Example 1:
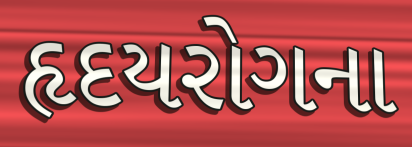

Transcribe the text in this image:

હૃદયરોગના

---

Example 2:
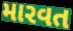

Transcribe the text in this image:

મારવત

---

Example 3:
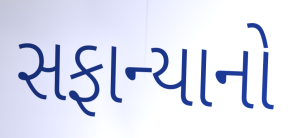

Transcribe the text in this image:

સફાન્યાનો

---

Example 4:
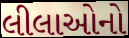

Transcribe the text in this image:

લીલાઓનો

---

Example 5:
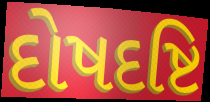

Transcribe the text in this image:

દોષદષ્ટિ